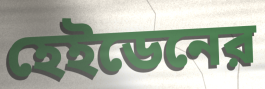
হেইডেনের